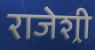
राजेश्री